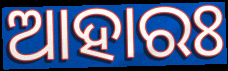
ଆହାରଃ